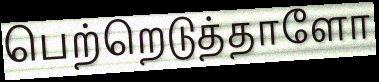
பெற்றெடுத்தாளோ